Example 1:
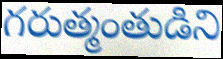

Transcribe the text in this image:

గరుత్మంతుడిని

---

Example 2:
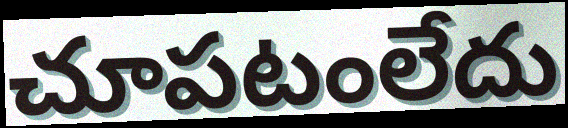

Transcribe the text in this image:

చూపటంలేదు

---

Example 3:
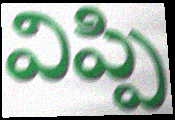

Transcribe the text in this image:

విప్పి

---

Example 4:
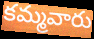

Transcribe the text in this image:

కమ్మవారు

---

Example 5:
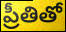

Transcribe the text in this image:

ప్రీతితో